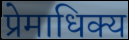
प्रेमाधिक्य